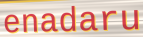
enadaru